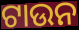
ଟାଉନ